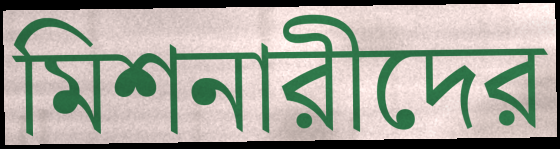
মিশনারীদের